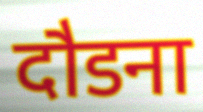
दौडना